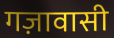
गज़ावासी